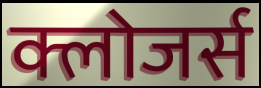
क्लोजर्स